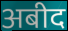
अबीद